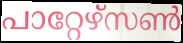
പാറ്റേഴ്സൺ